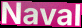
Naval